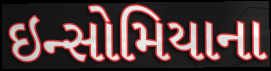
ઇન્સોમિયાના